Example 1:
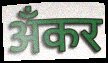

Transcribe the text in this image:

अँकर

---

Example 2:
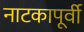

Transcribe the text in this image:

नाटकापूर्वी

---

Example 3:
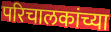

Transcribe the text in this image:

परिचालकांच्या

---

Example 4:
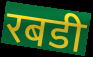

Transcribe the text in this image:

रबडी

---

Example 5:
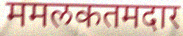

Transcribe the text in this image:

ममलकतमदार